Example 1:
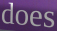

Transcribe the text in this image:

does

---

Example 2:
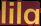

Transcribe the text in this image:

lila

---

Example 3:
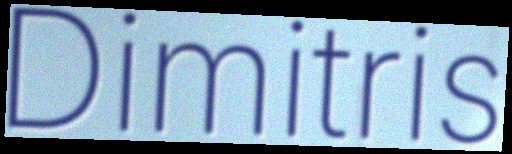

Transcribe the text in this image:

Dimitris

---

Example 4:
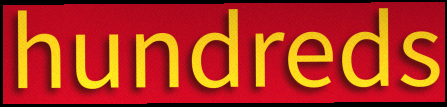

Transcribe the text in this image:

hundreds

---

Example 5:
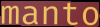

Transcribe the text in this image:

manto